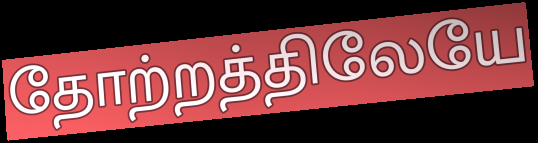
தோற்றத்திலேயே